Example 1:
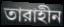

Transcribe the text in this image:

তারাহীন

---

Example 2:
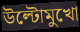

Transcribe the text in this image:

উল্টোমুখো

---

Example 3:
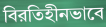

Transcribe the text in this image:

বিরতিহীনভাবে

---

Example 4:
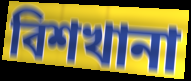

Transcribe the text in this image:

বিশখানা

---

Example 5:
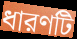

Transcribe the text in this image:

ধারণটি